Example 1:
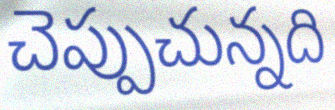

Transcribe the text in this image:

చెప్పుచున్నది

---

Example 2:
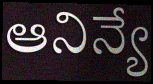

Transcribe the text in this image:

ఆనిన్యే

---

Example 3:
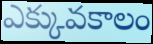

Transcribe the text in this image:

ఎక్కువకాలం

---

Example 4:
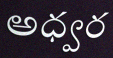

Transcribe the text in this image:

అధ్వర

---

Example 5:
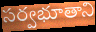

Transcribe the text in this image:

సర్వభూతాని